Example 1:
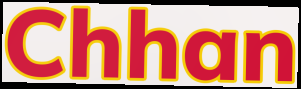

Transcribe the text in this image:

Chhan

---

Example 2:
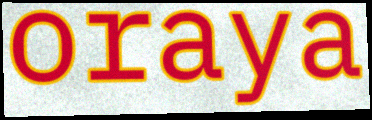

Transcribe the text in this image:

oraya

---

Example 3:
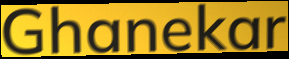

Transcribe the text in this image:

Ghanekar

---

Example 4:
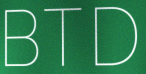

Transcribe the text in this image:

BTD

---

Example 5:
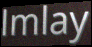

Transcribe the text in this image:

Imlay